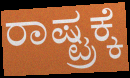
ರಾಷ್ಟ್ರಕ್ಕೆ